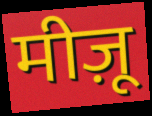
मीज़ू